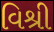
વિશ્રી